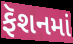
ફૅશનમાં